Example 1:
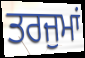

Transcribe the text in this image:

ਤਰਜੁਮਾਂ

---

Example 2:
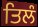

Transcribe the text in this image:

ਤਿਲੰ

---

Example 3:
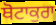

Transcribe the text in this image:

ਥੋਟਾਕੁਰਾ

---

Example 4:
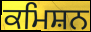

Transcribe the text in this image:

ਕਮਿਸ਼ਨ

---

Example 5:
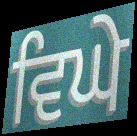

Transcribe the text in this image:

ਵਿਘੇ